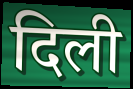
दिली